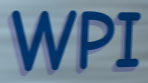
WPI